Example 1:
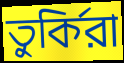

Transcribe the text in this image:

তুর্কিরা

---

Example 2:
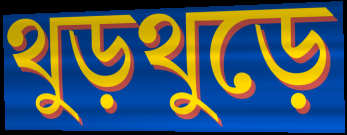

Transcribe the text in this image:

থুড়থুড়ে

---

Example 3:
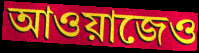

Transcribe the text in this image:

আওয়াজেও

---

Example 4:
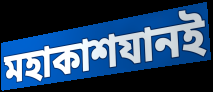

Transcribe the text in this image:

মহাকাশযানই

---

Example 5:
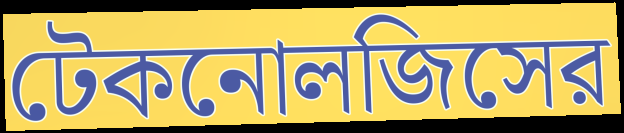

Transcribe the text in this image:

টেকনোলজিসের